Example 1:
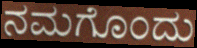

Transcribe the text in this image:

ನಮಗೊಂದು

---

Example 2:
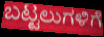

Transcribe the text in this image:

ಬಟ್ಟಲುಗಳಿಗೆ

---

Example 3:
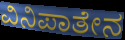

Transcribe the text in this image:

ವಿನಿಪಾತೇನ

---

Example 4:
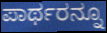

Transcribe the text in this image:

ಪಾರ್ಥರನ್ನೂ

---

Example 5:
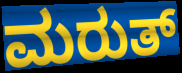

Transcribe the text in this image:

ಮರುತ್